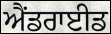
ਐਂਡਰਾਈਡ